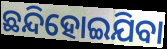
ଛନ୍ଦିହୋଇଯିବା